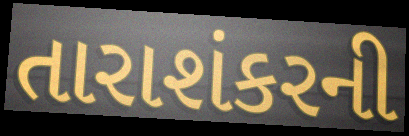
તારાશંકરની